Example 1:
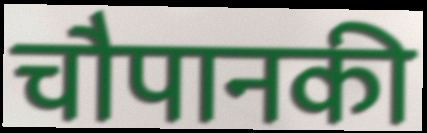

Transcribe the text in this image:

चौपानकी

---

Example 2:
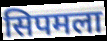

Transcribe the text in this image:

सिपमला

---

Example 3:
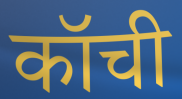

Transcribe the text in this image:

कॉची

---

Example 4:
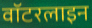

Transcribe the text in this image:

वॉटरलाइन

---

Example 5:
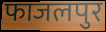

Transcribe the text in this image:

फाजलपुर